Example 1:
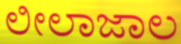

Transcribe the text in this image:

ಲೀಲಾಜಾಲ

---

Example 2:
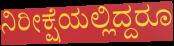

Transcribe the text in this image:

ನಿರೀಕ್ಷೆಯಲ್ಲಿದ್ದರೂ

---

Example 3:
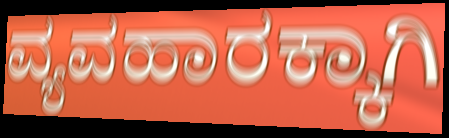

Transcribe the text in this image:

ವ್ಯವಹಾರಕ್ಕಾಗಿ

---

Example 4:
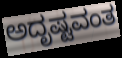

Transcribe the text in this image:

ಅದೃಷ್ಟವಂತ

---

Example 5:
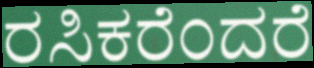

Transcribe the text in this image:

ರಸಿಕರೆಂದರೆ